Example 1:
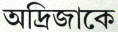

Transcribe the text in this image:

অদ্রিজাকে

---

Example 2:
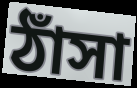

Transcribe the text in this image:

ঠাঁসা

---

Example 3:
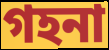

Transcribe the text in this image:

গহনা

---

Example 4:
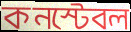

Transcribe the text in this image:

কনস্টেবল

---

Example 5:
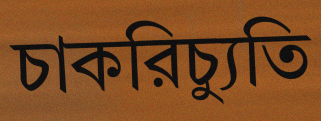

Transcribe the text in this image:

চাকরিচ্যুতি